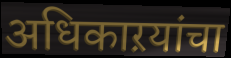
अधिकाऱयांचा